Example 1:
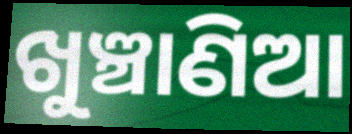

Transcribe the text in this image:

ଖୁଞ୍ଚାଣିଆ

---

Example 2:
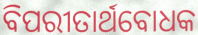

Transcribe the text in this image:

ବିପରୀତାର୍ଥବୋଧକ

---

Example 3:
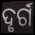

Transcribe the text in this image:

ଦୃର୍ଗ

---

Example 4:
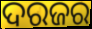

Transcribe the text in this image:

ଦରଜର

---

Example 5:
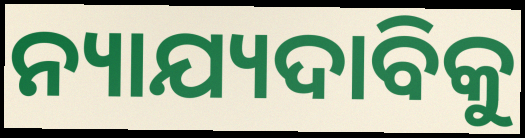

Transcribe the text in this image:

ନ୍ୟାଯ୍ୟଦାବିକୁ